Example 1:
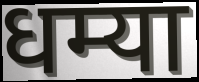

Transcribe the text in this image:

धम्या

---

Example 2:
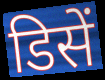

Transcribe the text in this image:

डिसें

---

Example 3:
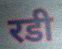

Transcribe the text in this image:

रडी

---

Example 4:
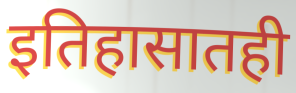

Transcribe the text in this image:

इतिहासातही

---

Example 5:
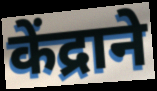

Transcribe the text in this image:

केंद्राने